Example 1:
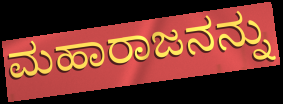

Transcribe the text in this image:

ಮಹಾರಾಜನನ್ನು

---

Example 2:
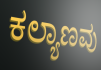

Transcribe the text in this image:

ಕಲ್ಯಾಣವು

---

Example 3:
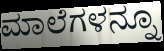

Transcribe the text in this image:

ಮಾಲೆಗಳನ್ನೂ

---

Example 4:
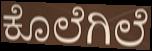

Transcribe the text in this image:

ಕೊಲೆಗಿಲೆ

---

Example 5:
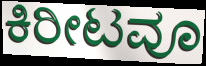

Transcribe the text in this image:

ಕಿರೀಟವೂ